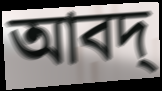
আবদ্